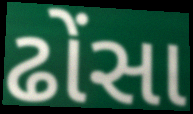
ઢોંસા